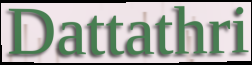
Dattathri